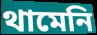
থামেনি